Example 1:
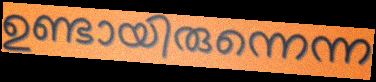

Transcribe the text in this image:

ഉണ്ടായിരുന്നെന്ന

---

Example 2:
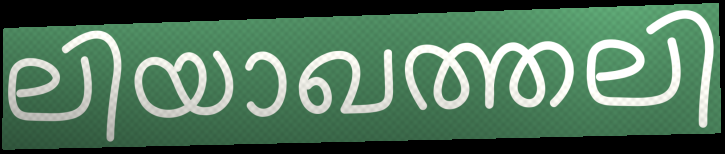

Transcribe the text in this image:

ലിയാഖത്തലി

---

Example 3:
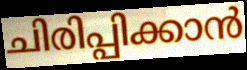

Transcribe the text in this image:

ചിരിപ്പിക്കാൻ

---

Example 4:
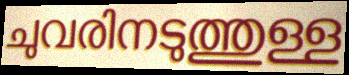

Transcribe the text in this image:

ചുവരിനടുത്തുള്ള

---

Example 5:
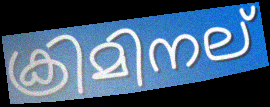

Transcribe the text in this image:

ക്രിമിനല്